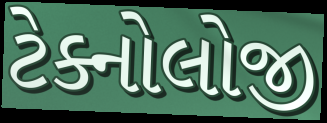
ટેક્નોલોજી